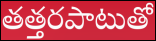
తత్తరపాటుతో